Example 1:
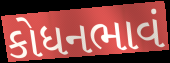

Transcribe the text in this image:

કોધનભાવં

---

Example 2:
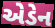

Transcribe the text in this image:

એડેન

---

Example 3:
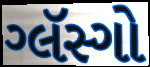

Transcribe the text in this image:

ગ્લૅસ્ગો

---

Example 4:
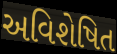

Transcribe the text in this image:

અવિશેષિત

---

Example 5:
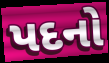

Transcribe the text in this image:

પદનો